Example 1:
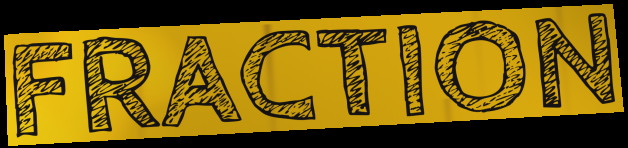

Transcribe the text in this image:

FRACTION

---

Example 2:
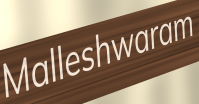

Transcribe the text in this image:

Malleshwaram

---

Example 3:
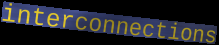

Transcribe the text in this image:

interconnections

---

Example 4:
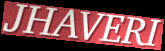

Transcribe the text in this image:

JHAVERI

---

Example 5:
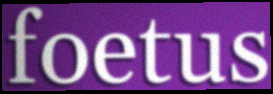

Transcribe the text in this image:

foetus